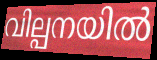
വില്പനയിൽ